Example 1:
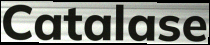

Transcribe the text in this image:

Catalase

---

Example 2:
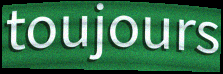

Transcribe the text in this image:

toujours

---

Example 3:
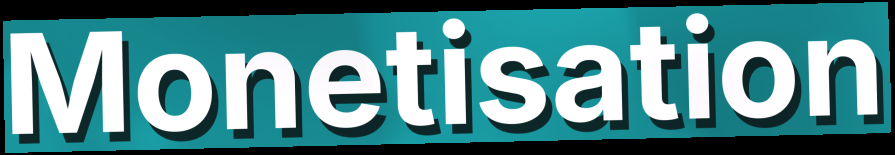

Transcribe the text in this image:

Monetisation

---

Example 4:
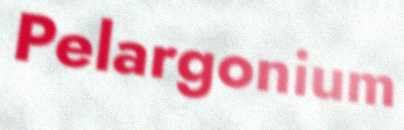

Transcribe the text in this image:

Pelargonium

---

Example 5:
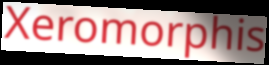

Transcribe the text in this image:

Xeromorphis